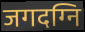
जगदग्नि